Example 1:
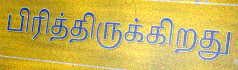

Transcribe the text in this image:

பிரித்திருக்கிறது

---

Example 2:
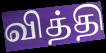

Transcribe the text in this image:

வித்தி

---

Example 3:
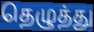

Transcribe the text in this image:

தெழுத்து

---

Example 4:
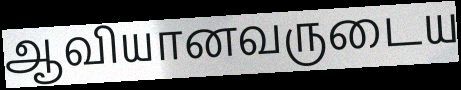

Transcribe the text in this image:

ஆவியானவருடைய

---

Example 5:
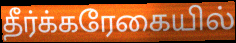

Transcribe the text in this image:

தீர்க்கரேகையில்